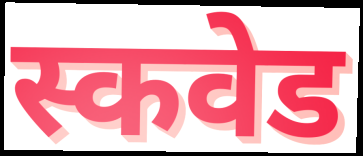
स्कवेड